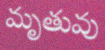
మృతువు